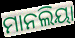
ମାନଲିୟା